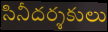
సినీదర్శకులు